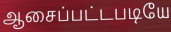
ஆசைப்பட்டபடியே